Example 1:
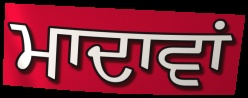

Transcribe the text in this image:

ਮਾਦਾਵਾਂ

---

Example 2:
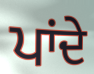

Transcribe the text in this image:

ਪਾਂਦੇ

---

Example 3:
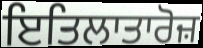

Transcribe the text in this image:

ਇਤਿਲਾਤਾਰੋਜ਼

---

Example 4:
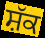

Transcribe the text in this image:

ਸ਼ੱਕ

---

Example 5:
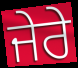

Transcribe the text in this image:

ਜੇਰੇ